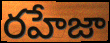
రహేజా